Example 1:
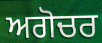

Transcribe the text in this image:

ਅਗੋਚਰ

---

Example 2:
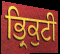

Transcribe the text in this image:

ਭ੍ਰਿਕੁਟੀ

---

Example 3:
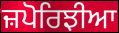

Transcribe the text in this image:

ਜ਼ਪੋਰਿਝੀਆ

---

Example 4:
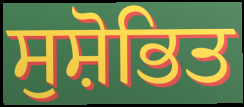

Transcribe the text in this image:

ਸੁਸ਼ੋਭਿਤ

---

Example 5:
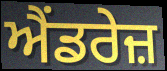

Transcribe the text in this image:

ਐਂਡਰੇਜ਼